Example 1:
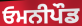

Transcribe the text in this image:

ਓਮਨੀਪੌਡ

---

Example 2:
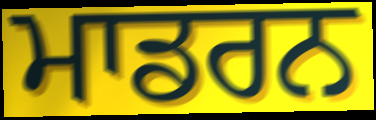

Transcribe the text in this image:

ਮਾਡਰਨ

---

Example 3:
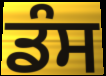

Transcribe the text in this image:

ਡੰਸ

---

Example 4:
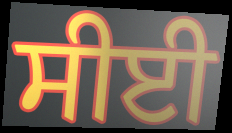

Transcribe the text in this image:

ਸੀਈ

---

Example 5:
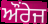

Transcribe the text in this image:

ਔਂਰੇਜ